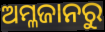
ଅମ୍ଳଜାନରୁ